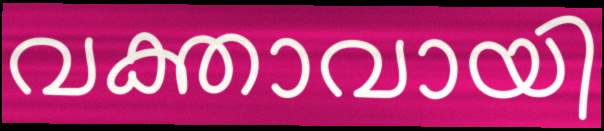
വക്താവായി